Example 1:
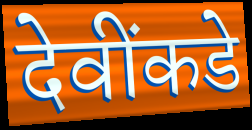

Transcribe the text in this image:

देवींकडे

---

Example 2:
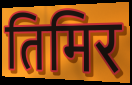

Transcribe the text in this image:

तिमिर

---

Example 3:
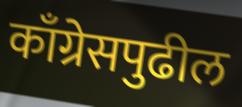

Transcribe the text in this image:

काँग्रेसपुढील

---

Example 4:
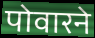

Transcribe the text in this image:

पोवारने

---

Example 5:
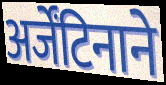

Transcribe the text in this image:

अर्जेंटिनाने